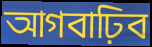
আগবাঢ়িব